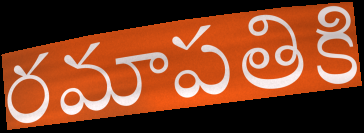
రమాపతికి